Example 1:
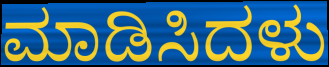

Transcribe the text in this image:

ಮಾಡಿಸಿದಳು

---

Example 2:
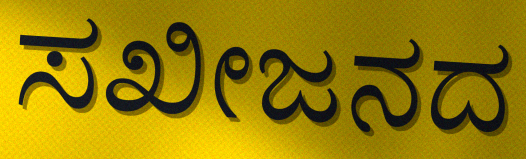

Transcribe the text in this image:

ಸಖೀಜನದ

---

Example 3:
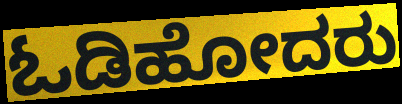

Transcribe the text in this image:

ಓಡಿಹೋದರು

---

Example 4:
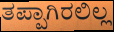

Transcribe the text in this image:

ತಪ್ಪಾಗಿರಲಿಲ್ಲ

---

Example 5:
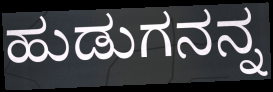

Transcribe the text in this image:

ಹುಡುಗನನ್ನ